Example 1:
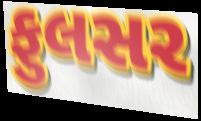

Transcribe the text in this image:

ફુલસર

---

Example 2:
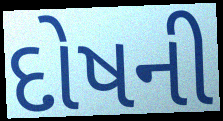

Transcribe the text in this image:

દોષની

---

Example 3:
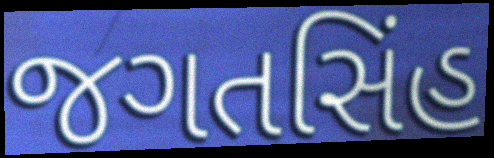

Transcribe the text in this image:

જગતસિંહ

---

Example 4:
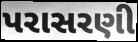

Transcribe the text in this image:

પરાસરણી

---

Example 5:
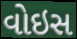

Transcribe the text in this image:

વોઇસ